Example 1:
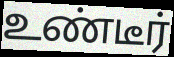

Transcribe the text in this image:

உண்டீர்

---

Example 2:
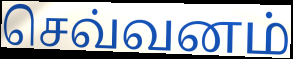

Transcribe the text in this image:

செவ்வனம்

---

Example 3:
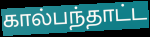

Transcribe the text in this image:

கால்பந்தாட்ட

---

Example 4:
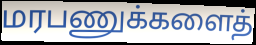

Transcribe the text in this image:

மரபணுக்களைத்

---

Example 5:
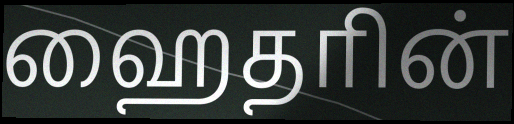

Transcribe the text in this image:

ஹைதரின்